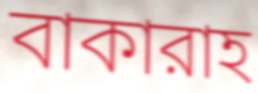
বাকারাহ